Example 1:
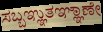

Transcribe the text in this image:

ಸಬ್ಬಞ್ಞುತಞ್ಞಾಣೇ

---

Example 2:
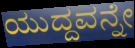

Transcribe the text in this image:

ಯುದ್ದವನ್ನೇ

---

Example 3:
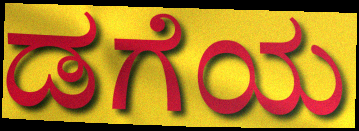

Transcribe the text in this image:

ಡಗೆಯ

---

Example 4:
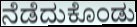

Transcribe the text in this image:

ನೆಡೆದುಕೊಂಡು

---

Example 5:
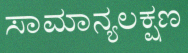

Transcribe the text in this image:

ಸಾಮಾನ್ಯಲಕ್ಷಣ